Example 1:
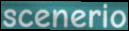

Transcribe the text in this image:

scenerio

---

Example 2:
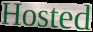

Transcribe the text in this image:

Hosted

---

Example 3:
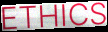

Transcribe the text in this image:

ETHICS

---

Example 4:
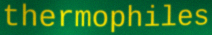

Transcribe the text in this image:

thermophiles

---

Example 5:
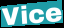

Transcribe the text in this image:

Vice